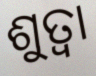
ଶୁତ୍ବା